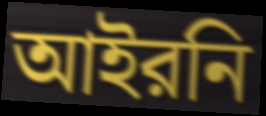
আইরনি